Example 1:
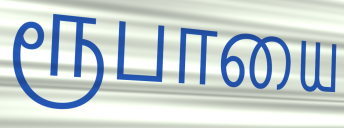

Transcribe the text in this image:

ரூபாயை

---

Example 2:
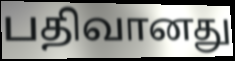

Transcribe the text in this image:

பதிவானது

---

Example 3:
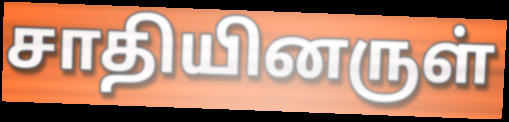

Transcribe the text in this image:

சாதியினருள்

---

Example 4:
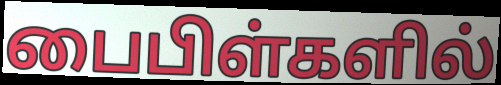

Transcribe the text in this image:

பைபிள்களில்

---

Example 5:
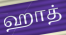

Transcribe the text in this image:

ஹாத்